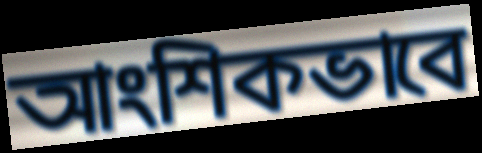
আংশিকভাবে